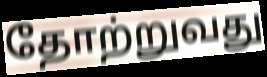
தோற்றுவது